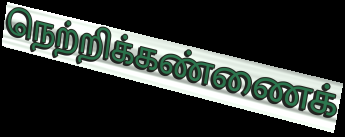
நெற்றிக்கண்ணைக்